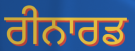
ਰੀਨਾਰਡ